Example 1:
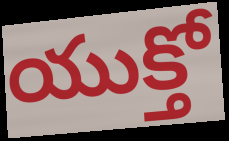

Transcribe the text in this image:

యుక్తో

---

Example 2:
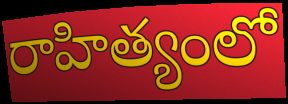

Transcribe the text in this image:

రాహిత్యంలో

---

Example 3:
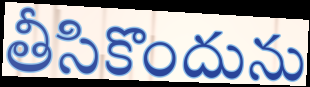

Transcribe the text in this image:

తీసికొందును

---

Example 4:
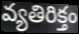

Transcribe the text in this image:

వ్యతిరిక్తం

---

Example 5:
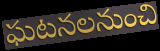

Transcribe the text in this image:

ఘటనలనుంచి